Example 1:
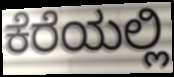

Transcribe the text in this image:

ಕೆರೆಯಲ್ಲಿ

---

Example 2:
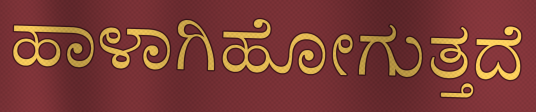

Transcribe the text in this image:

ಹಾಳಾಗಿಹೋಗುತ್ತದೆ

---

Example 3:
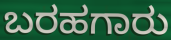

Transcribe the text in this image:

ಬರಹಗಾರು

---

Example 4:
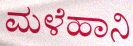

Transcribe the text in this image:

ಮಳೆಹಾನಿ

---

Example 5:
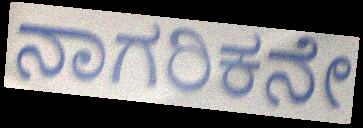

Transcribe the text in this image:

ನಾಗರಿಕನೇ